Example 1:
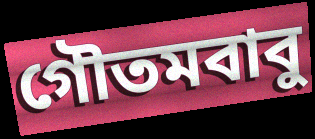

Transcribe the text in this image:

গৌতমবাবু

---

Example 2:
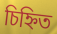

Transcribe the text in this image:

চিহ্নিত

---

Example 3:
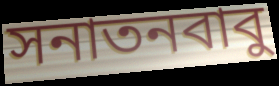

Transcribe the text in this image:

সনাতনবাবু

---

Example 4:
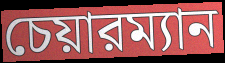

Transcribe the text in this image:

চেয়ারম্যান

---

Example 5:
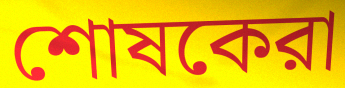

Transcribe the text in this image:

শোষকেরা